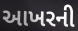
આખરની